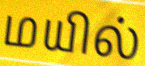
மயில்